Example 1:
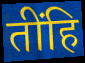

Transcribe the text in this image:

तींहि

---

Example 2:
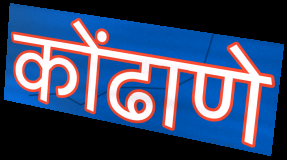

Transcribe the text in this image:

कोंढाणे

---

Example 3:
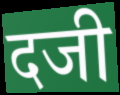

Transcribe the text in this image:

दजी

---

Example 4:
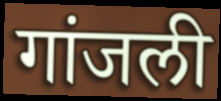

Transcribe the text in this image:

गांजली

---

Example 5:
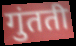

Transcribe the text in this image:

गुंतती